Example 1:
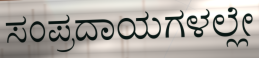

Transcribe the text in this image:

ಸಂಪ್ರದಾಯಗಳಲ್ಲೇ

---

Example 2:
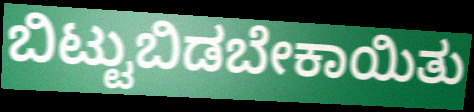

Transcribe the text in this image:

ಬಿಟ್ಟುಬಿಡಬೇಕಾಯಿತು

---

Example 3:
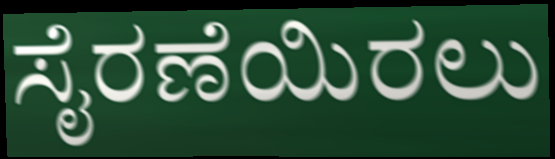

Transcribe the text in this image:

ಸೈರಣೆಯಿರಲು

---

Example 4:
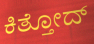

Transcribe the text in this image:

ಕಿತ್ತೋದ್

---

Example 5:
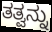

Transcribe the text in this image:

ತತ್ವನ್ನು